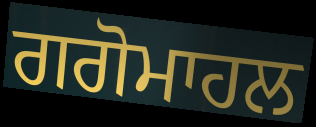
ਗਗੋਮਾਹਲ